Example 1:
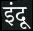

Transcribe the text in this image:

इंदू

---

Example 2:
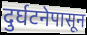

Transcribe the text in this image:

दुर्घटनेपासून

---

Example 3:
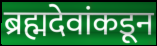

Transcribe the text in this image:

ब्रह्मदेवांकडून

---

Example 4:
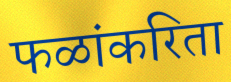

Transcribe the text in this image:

फळांकरिता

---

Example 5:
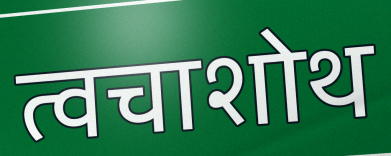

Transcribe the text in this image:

त्वचाशोथ